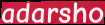
adarsho